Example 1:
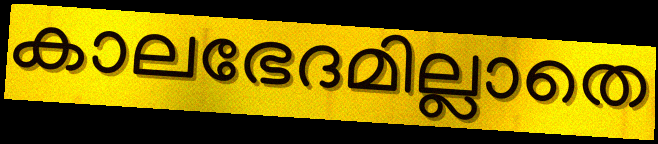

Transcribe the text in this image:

കാലഭേദമില്ലാതെ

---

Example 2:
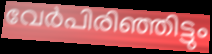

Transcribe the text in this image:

വേർപിരിഞ്ഞിട്ടും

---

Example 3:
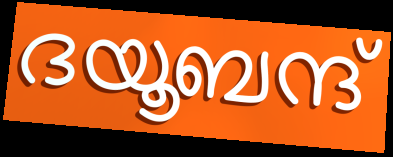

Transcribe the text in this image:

ദയൂബന്ദ്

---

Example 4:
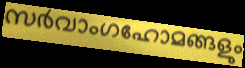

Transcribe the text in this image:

സർവാംഗഹോമങ്ങളും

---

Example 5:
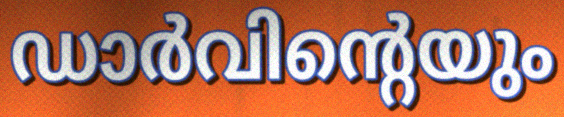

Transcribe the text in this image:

ഡാർവിന്റെയും